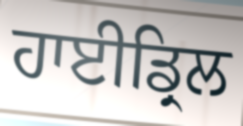
ਹਾਈਡ੍ਰਿਲ